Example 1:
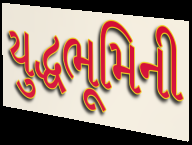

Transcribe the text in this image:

યુદ્ધભૂમિની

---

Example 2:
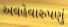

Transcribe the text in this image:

અવહેવારુપણું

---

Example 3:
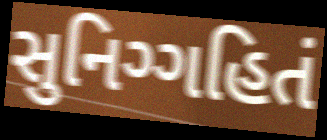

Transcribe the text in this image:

સુનિગ્ગહિતં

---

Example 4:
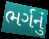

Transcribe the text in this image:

ભર્ગનું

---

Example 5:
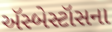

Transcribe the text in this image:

ઍસ્બેસ્ટૉસના